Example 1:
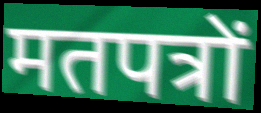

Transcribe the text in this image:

मतपत्रों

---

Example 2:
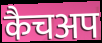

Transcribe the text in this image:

कैचअप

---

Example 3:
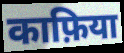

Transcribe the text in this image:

काफ़िया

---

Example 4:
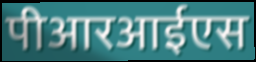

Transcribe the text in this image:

पीआरआईएस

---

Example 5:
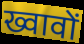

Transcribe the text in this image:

ख्वावों